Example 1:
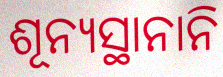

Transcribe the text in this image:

ଶୂନ୍ୟସ୍ଥାନାନି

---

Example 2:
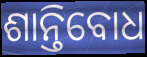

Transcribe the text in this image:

ଶାନ୍ତିବୋଧ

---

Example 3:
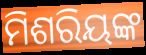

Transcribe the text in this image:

ମିଶରିୟଙ୍କ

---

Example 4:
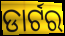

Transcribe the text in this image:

ଡାର୍ଟର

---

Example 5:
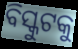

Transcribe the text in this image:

ବିସ୍କୁଟକୁ